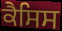
ਕੈਸਿਸ